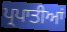
ਪ੍ਰਪਾਤੀਆਂ